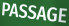
PASSAGE